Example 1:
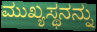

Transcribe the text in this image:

ಮುಖ್ಯಸ್ಥನನ್ನು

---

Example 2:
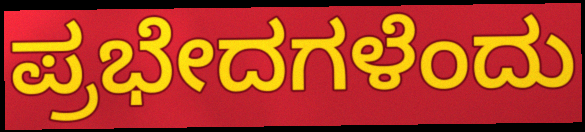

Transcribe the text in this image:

ಪ್ರಭೇದಗಳೆಂದು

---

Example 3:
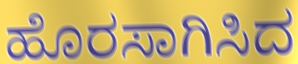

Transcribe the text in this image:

ಹೊರಸಾಗಿಸಿದ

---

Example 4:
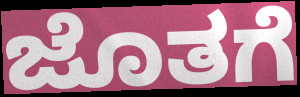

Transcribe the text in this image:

ಜೊತಗೆ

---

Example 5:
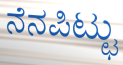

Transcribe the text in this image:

ನೆನಪಿಟ್ಟು